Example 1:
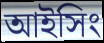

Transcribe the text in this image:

আইসিং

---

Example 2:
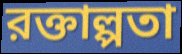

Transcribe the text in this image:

রক্তাল্পতা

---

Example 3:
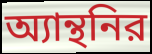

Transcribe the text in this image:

অ্যান্থনির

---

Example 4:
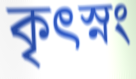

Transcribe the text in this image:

কৃৎস্নং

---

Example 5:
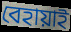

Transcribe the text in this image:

বেহায়াই